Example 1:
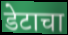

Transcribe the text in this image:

डेटाचा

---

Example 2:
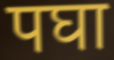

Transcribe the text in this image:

पघा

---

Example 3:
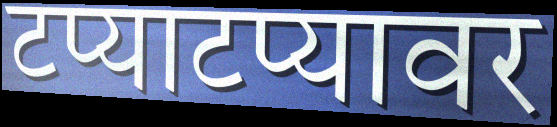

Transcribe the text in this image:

टप्याटप्यावर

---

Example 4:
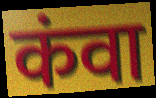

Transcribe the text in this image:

कंवा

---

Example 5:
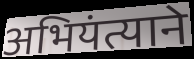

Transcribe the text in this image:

अभियंत्याने